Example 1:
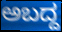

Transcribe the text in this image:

ಅಬದ್ದ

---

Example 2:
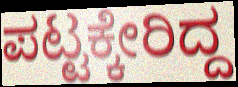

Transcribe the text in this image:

ಪಟ್ಟಕ್ಕೇರಿದ್ದ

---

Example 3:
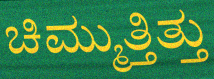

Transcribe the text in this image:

ಚಿಮ್ಮುತ್ತಿತ್ತು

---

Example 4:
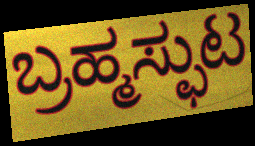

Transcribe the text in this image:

ಬ್ರಹ್ಮಸ್ಫುಟ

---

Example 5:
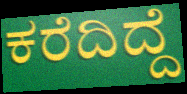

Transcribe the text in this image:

ಕರೆದಿದ್ದೆ